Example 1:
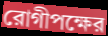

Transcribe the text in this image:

রোগীপক্ষের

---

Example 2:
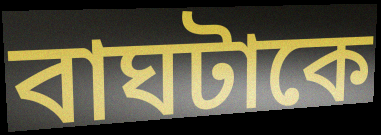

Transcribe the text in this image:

বাঘটাকে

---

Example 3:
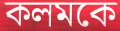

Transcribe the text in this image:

কলমকে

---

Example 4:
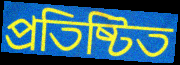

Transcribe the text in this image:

প্রতিষ্টিত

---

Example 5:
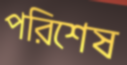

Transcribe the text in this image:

পরিশেষ